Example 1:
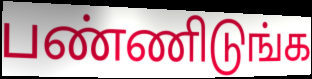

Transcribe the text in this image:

பண்ணிடுங்க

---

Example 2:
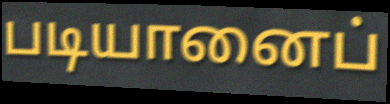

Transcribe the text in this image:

படியானைப்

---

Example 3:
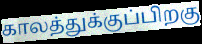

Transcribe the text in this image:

காலத்துக்குப்பிறகு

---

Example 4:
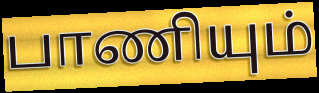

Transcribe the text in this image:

பாணியும்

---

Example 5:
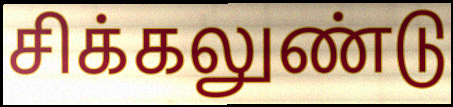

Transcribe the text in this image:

சிக்கலுண்டு